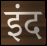
इंद